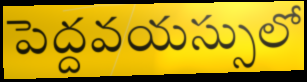
పెద్దవయస్సులో